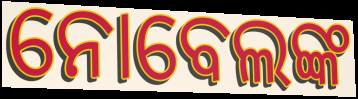
ନୋବେଲଙ୍କ